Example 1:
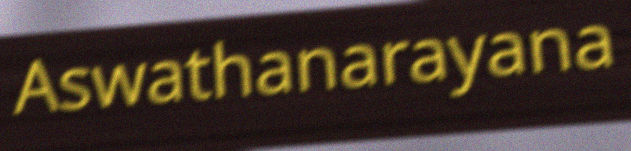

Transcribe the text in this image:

Aswathanarayana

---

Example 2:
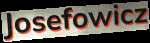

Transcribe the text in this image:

Josefowicz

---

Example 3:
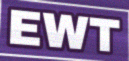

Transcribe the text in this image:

EWT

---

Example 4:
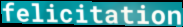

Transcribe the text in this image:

felicitation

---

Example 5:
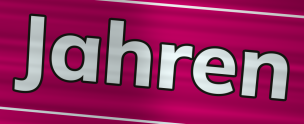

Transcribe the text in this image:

Jahren